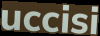
uccisi